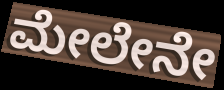
ಮೇಲೇನೇ